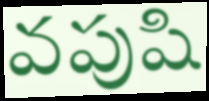
వపుషి